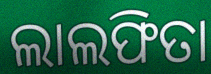
ଲାଲଫିତା